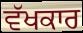
ਵੱਖਕਾਰ